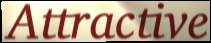
Attractive